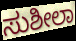
ಸುಶೀಲಾ